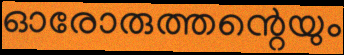
ഓരോരുത്തന്റെയും